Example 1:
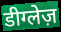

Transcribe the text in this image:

डीग्लेज़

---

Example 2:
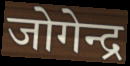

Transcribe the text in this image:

जोगेन्द्र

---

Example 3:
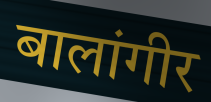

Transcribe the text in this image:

बालांगीर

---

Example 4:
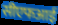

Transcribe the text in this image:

सीएफआई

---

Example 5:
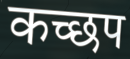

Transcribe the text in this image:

कच्छप